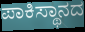
ಪಾಕಿಸ್ಥಾನದ